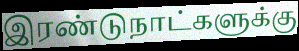
இரண்டுநாட்களுக்கு